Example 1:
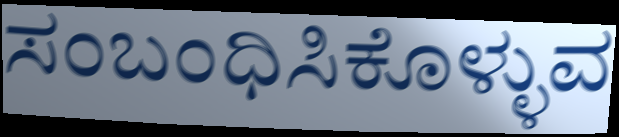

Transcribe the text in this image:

ಸಂಬಂಧಿಸಿಕೊಳ್ಳುವ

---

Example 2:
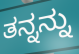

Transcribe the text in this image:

ತನ್ನನ್ನು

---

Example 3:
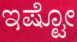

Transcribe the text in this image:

ಇಷ್ಟೋ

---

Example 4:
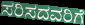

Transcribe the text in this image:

ಸರಿಸದವರಿಗೆ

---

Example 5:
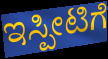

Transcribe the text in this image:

ಇಸ್ಪೀಟಿಗೆ